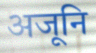
अजूनि